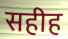
सहीह